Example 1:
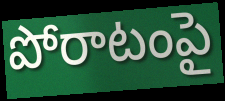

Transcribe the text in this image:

పోరాటంపై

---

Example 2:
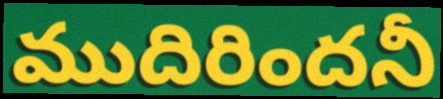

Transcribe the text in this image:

ముదిరిందనీ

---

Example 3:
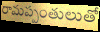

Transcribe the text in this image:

రామప్పంతులుతో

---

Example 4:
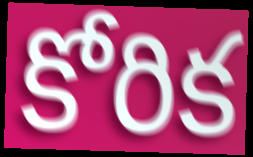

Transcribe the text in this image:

కోరిక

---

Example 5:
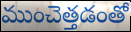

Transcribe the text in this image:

ముంచెత్తడంతో